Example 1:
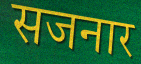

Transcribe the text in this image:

सजनार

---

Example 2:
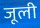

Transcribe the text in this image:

जूली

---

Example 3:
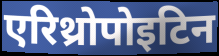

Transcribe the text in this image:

एरिथ्रोपोइटिन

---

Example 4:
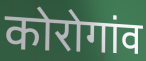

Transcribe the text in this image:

कोरोगांव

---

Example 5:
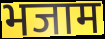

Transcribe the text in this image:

भजाम